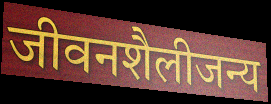
जीवनशैलीजन्य